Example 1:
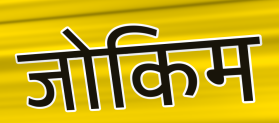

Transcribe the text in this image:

जोकिम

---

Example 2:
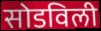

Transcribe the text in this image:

सोडविली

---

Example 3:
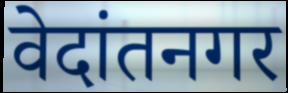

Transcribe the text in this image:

वेदांतनगर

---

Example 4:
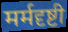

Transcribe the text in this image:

मर्मदृष्टी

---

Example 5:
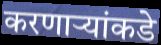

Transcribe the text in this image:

करणाऱ्यांकडे